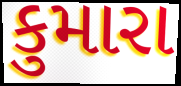
કુમારા